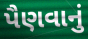
પૈણવાનું